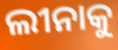
ଲୀନାକୁ